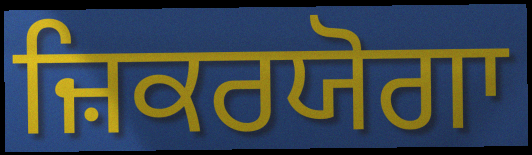
ਜ਼ਿਕਰਯੋਗਾ